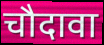
चौदावा